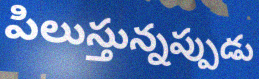
పిలుస్తున్నప్పుడు